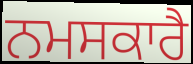
ਨਮਸਕਾਰੈ